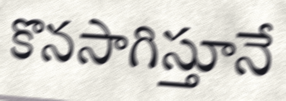
కొనసాగిస్తూనే